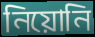
নিয়োনি